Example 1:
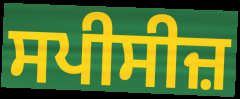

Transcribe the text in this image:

ਸਪੀਸੀਜ਼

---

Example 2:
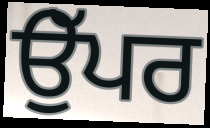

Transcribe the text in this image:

ਉੁੱਪਰ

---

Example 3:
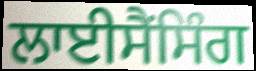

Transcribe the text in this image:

ਲਾਈਸੈਂਸਿੰਗ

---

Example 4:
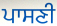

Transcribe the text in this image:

ਪਾਸਣੀ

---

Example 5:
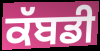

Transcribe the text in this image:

ਕੱਬਡੀ